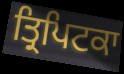
ਤ੍ਰਿਪਿਟਕਾ